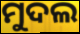
ମୁଦଲ